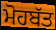
ਮੋਹਬੱਤ